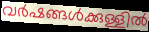
വർഷങ്ങൾക്കുള്ളിൽ